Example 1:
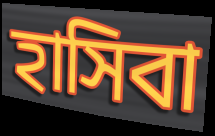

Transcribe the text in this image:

হাসিবা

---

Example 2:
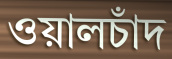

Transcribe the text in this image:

ওয়ালচাঁদ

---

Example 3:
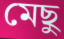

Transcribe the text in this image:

মেছু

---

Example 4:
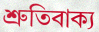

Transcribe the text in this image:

শ্রুতিবাক্য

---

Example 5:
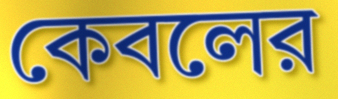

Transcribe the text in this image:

কেবলের